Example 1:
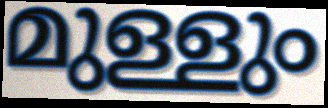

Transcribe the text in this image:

മുള്ളും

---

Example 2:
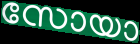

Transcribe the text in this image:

സോയാ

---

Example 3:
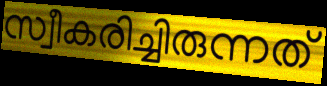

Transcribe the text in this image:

സ്വീകരിച്ചിരുന്നത്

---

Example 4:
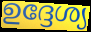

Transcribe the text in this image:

ഉദ്ദേശ്യ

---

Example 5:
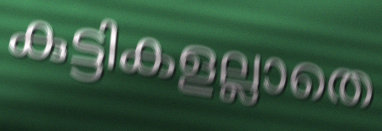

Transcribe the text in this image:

കുട്ടികളല്ലാതെ